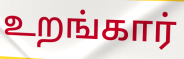
உறங்கார்